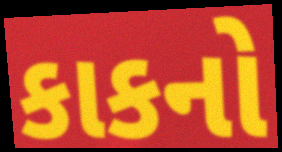
કાકનો